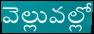
వెల్లువల్లో